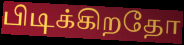
பிடிக்கிறதோ